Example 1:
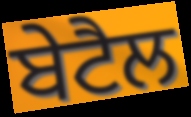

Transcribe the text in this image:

ਬੇਟੈਲ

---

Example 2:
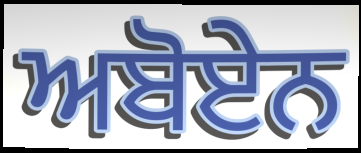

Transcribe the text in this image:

ਅਬੋਏਨ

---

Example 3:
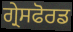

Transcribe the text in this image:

ਗ੍ਰੇਸਫੋਰਡ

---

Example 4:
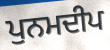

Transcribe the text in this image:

ਪੁਨਮਦੀਪ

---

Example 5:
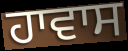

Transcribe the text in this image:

ਹਾਵਾਸ